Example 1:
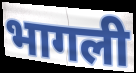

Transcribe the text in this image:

भागली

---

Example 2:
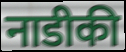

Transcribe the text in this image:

नाडीकी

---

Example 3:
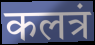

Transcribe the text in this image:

कलत्रं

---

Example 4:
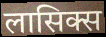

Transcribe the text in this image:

लासिक्स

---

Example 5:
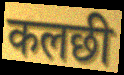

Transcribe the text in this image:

कलछी